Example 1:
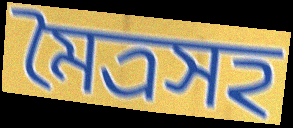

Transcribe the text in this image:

মৈত্রসহ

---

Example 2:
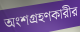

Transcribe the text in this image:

অংশগ্রহণকারীর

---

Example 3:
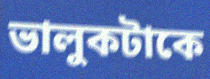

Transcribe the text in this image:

ভালুকটাকে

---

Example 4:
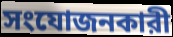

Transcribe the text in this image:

সংযোজনকারী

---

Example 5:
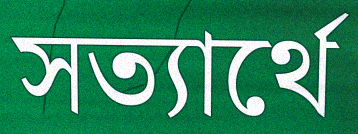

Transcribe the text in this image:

সত্যার্থে